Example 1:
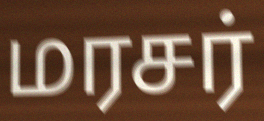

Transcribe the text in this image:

மரசர்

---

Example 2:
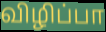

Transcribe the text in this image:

விழிப்பா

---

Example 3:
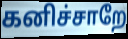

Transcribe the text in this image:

கனிச்சாறே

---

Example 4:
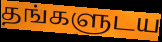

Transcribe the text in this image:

தங்களுடய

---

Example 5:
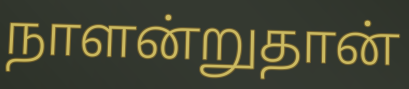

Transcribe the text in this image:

நாளன்றுதான்